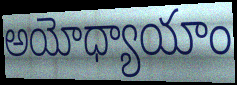
అయోధ్యాయాం